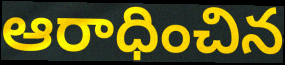
ఆరాధించిన